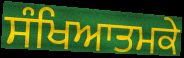
ਸੰਖਿਆਤਮਕੇ